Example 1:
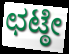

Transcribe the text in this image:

ಛಟ್ಠೇ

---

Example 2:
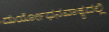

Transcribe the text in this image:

ದುರ್ಯೋಧನವಾಕ್ಯದಲ್ಲಿ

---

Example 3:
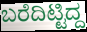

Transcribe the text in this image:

ಬರೆದಿಟ್ಟಿದ್ದ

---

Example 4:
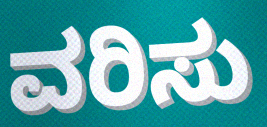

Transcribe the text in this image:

ವರಿಸು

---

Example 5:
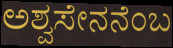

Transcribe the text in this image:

ಅಶ್ವಸೇನನೆಂಬ